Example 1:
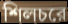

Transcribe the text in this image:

শিলচরে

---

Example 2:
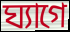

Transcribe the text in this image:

ঘ্যাগে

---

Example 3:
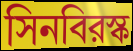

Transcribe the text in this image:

সিনবিরস্ক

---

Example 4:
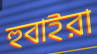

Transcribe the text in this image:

হুবাইরা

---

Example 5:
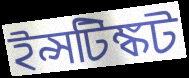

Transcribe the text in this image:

ইন্সটিঙ্কট